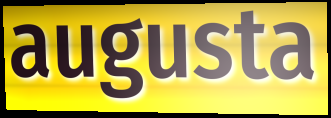
augusta